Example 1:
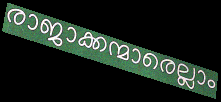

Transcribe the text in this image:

രാജാക്കന്മാരെല്ലാം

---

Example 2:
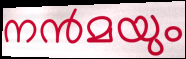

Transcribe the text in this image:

നൻമയും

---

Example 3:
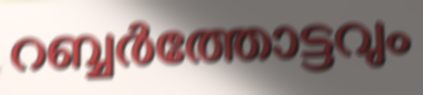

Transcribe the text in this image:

റബ്ബർത്തോട്ടവും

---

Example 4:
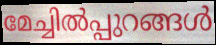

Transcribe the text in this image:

മേച്ചിൽപ്പുറങ്ങൾ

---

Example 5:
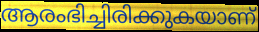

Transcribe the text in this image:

ആരംഭിച്ചിരിക്കുകയാണ്